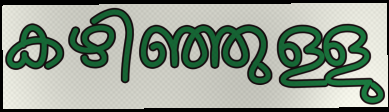
കഴിഞ്ഞുള്ളു